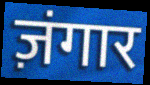
ज़ंगार